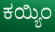
ಕಯ್ಯಿಂ